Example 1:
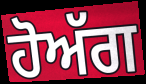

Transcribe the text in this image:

ਹੋਅੱਗ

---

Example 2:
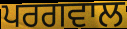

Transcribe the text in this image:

ਪਰਗਵਾਲ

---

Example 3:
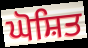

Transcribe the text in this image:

ਘੋਸ਼ਿਤ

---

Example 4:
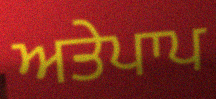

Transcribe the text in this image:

ਅਤੇਪਾਪ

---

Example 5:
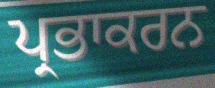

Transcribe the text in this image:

ਪ੍ਰਭਾਕਰਨ